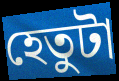
হেতুটা